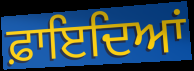
ਫ਼ਾਇਦਿਆਂ